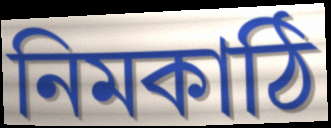
নিমকাঠি